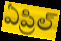
ఏప్రిల్